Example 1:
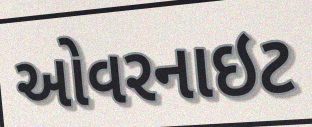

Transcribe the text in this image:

ઓવરનાઇટ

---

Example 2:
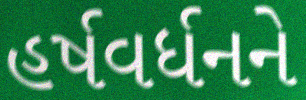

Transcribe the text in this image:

હર્ષવર્ધનને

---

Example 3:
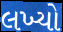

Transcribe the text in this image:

લખ્યો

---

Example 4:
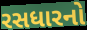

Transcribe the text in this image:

રસધારનો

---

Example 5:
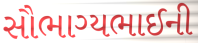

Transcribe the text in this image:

સૌભાગ્યભાઈની